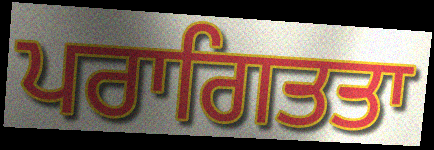
ਪਰਾਗਿਤਤਾ